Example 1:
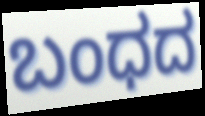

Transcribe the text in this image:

ಬಂಧದ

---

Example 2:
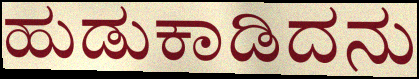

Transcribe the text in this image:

ಹುಡುಕಾಡಿದನು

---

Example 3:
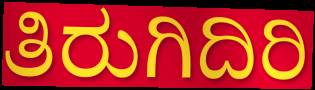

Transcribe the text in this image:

ತಿರುಗಿದಿರಿ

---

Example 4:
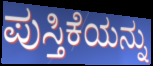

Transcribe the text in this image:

ಪುಸ್ತಿಕೆಯನ್ನು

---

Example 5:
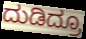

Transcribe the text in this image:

ದುಡಿದ್ರೂ